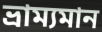
ভ্ৰাম্যমান